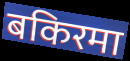
बकिरमा